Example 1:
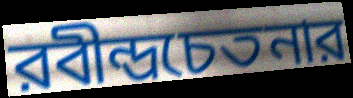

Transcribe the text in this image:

রবীন্দ্রচেতনার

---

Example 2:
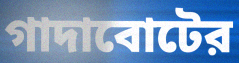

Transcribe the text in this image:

গাদাবোটের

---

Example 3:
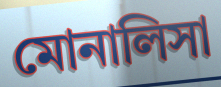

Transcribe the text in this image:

মোনালিসা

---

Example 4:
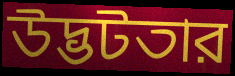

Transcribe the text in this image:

উদ্ভটতার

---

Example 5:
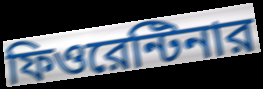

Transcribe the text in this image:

ফিওরেন্টিনার